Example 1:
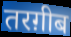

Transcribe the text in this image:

तरग़ीब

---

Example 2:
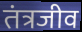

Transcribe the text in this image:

तंत्रजीव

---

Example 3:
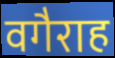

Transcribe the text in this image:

वगैराह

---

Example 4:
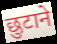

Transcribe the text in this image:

छुटाने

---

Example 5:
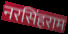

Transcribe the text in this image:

नरसिंहराम